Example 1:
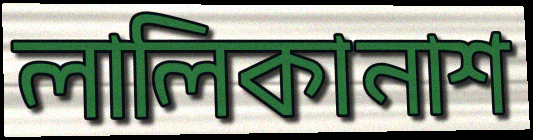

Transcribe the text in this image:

লালিকানাশ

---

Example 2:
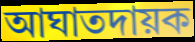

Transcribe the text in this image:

আঘাতদায়ক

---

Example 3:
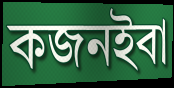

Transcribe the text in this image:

কজনইবা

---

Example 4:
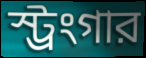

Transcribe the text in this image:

স্ট্রংগার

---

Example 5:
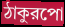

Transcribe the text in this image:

ঠাকুরপো